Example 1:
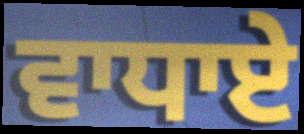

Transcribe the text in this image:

ਵਾਧਾਏ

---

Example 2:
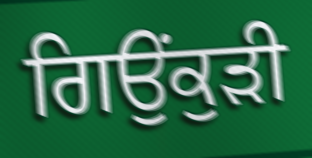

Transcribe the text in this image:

ਗਿਉਂਕੁੜੀ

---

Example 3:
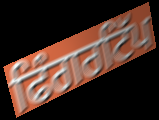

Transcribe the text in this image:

ਫਿੰਗਰਟਿੱਪ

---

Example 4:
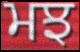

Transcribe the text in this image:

ਮਝ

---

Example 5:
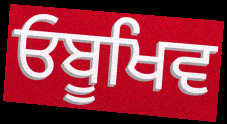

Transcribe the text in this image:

ਓਬੂਖਿਵ